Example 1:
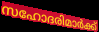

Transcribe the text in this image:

സഹോദരിമാർക്ക്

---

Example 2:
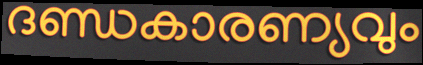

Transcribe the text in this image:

ദണ്ഡകാരണ്യവും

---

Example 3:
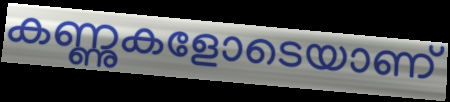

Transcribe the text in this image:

കണ്ണുകളോടെയാണ്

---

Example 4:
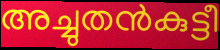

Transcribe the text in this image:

അച്ചുതൻകുട്ടീ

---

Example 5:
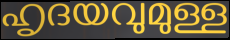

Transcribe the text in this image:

ഹൃദയവുമുള്ള